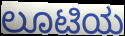
ಲೂಟಿಯ